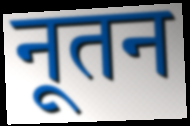
नूतन